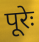
पूरेः